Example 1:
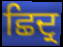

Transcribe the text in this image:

ਛਿਦ੍ਰ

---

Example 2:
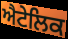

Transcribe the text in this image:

ਐਟੇਲਿਕ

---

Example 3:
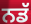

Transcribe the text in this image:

ਨਡੱ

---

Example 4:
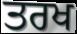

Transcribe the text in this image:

ਤਰਖ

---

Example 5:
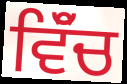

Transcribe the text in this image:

ਵਿੱੰਚ